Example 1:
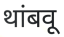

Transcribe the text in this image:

थांबवू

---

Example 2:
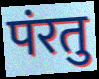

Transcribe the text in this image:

पंरतु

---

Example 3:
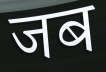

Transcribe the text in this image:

जब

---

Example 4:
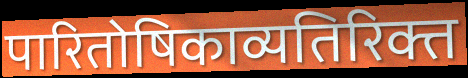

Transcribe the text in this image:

पारितोषिकाव्यतिरिक्त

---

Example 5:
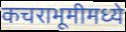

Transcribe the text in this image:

कचराभूमीमध्ये